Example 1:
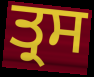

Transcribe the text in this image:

ਤ੍ਰਸ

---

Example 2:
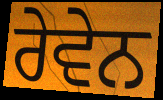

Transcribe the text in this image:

ਰੇਵੇਨ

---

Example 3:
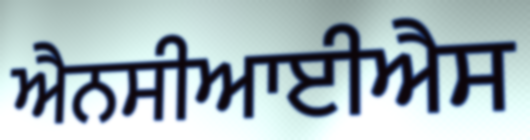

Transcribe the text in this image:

ਐਨਸੀਆਈਐਸ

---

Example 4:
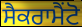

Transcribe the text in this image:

ਸੈਕਰਾਮੈਂਟੋ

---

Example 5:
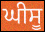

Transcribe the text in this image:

ਘੀਸੂ